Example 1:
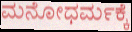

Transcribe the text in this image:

ಮನೋಧರ್ಮಕ್ಕೆ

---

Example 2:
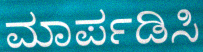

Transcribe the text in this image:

ಮಾರ್ಪಡಿಸಿ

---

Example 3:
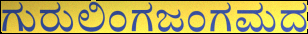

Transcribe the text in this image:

ಗುರುಲಿಂಗಜಂಗಮದ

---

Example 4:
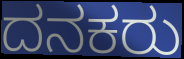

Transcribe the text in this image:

ದನಕರು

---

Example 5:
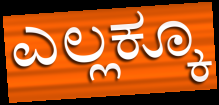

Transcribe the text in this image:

ಎಲ್ಲಕ್ಕೂ